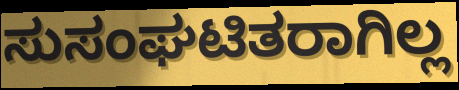
ಸುಸಂಘಟಿತರಾಗಿಲ್ಲ